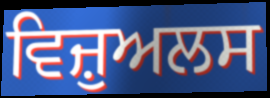
ਵਿਜ਼ੁਅਲਸ